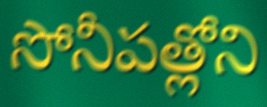
సోనీపత్లోని